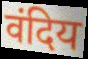
वंदिय